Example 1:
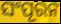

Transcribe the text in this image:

ସଂପୂରନ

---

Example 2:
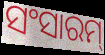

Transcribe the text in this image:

ସଂସାରମ୍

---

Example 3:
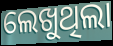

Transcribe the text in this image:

ଲେଖୁଥିଲା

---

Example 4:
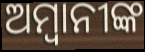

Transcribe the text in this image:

ଅମ୍ବାନୀଙ୍କ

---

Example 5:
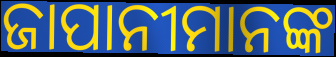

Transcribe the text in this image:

ଜାପାନୀମାନଙ୍କ